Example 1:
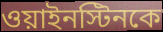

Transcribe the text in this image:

ওয়াইনস্টিনকে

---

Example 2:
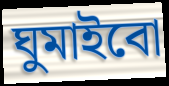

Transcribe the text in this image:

ঘুমাইবো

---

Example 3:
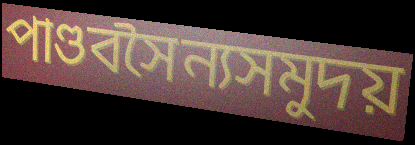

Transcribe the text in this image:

পাণ্ডবসৈন্যসমুদয়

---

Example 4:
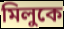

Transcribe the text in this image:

মিলুকে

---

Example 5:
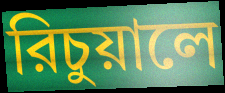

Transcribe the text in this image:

রিচুয়ালে